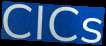
CICs